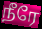
நீரே